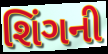
શિંગની